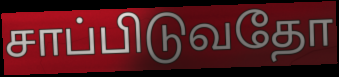
சாப்பிடுவதோ